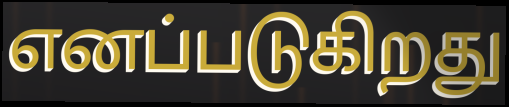
எனப்படுகிறது